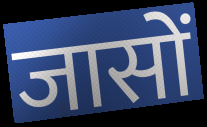
जासों